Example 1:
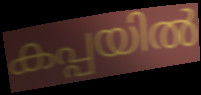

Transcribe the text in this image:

കപ്പയിൽ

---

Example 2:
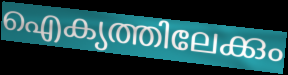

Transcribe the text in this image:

ഐക്യത്തിലേക്കും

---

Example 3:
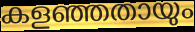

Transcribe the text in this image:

കളഞ്ഞതായും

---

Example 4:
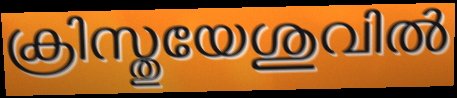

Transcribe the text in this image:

ക്രിസ്തുയേശുവിൽ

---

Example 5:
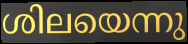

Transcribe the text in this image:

ശിലയെന്നു